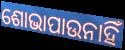
ଶୋଭାପାଉନାହିଁ